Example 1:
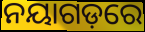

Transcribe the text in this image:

ନୟାଗଡ଼ରେ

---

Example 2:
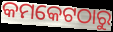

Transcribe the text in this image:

କମକେଟଠାରୁ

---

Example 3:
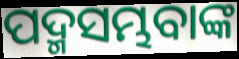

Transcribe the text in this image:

ପଦ୍ମସମ୍ଭବାଙ୍କ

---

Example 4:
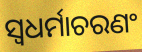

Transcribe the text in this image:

ସ୍ୱଧର୍ମାଚରଣଂ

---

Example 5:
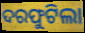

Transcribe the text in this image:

ଦରଫୁଟିଲା